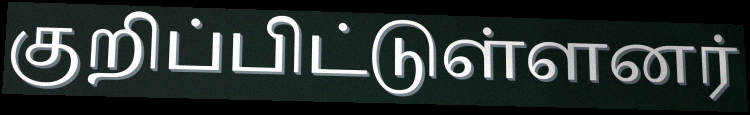
குறிப்பிட்டுள்ளனர்